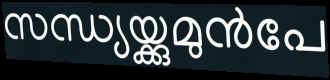
സന്ധ്യയ്ക്കുമുൻപേ